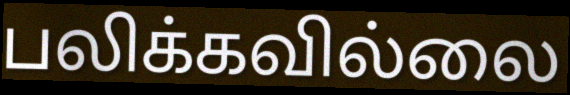
பலிக்கவில்லை